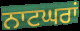
ਨਾਟਘਰਾਂ